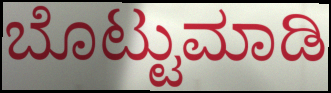
ಬೊಟ್ಟುಮಾಡಿ